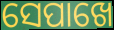
ସେପାଖେ